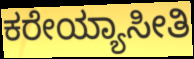
ಕರೇಯ್ಯಾಸೀತಿ